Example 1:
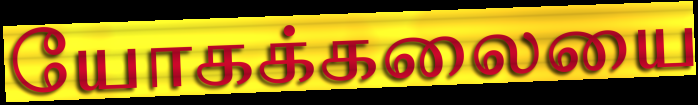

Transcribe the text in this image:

யோகக்கலையை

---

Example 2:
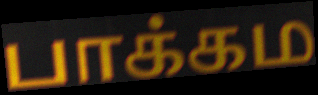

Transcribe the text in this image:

பாக்கம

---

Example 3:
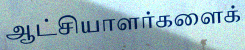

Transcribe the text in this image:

ஆட்சியாளர்களைக்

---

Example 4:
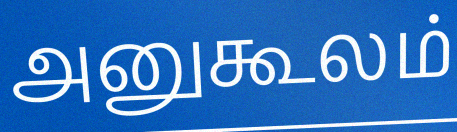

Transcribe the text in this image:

அனுகூலம்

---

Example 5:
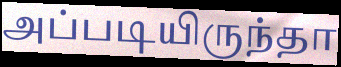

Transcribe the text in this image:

அப்படியிருந்தா